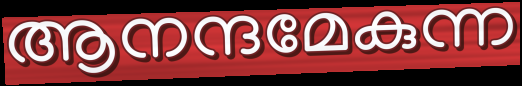
ആനന്ദമേകുന്ന